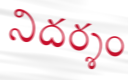
నిదర్శం